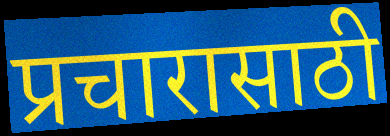
प्रचारासाठी